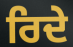
ਰਿਦੇ